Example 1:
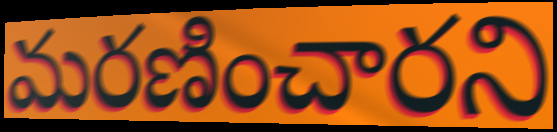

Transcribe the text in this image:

మరణించారని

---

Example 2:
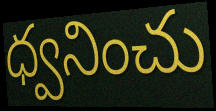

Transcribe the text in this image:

ధ్వనించు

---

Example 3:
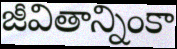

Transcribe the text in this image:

జీవితాన్నింకా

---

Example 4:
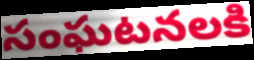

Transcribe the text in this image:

సంఘటనలకి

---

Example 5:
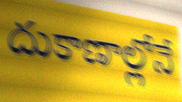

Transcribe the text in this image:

దుకాణాల్లోనే